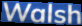
Walsh